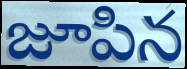
జూపిన